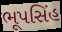
ભૂપસિંહ